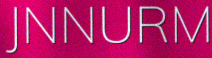
JNNURM